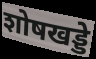
शोषखड्डे